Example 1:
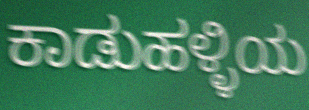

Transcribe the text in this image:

ಕಾಡುಹಳ್ಳಿಯ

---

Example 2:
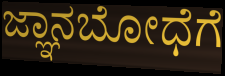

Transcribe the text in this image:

ಜ್ಞಾನಬೋಧೆಗೆ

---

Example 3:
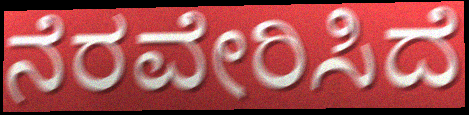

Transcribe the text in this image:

ನೆರವೇರಿಸಿದೆ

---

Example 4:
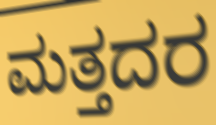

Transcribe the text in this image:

ಮತ್ತದರ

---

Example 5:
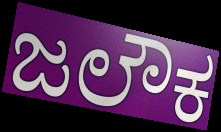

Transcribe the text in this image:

ಜಲೌಕ